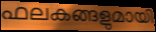
ഫലകങ്ങളുമായി